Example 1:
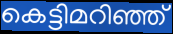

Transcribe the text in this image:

കെട്ടിമറിഞ്ഞ്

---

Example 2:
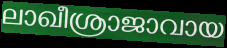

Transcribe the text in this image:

ലാഖീശ്രാജാവായ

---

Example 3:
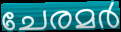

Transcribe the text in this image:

ചേരമർ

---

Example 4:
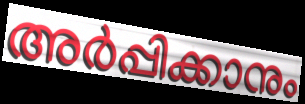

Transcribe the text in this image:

അർപ്പിക്കാനും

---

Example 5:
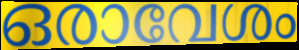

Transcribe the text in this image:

ഒരാവേശം